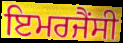
ਇਮਰਜੈਂਸੀ